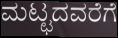
ಮಟ್ಟದವರೆಗೆ